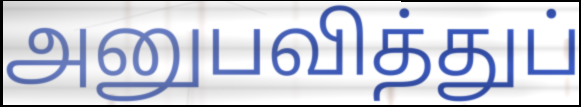
அனுபவித்துப்